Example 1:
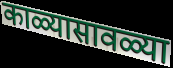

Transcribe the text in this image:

काळ्यासावळ्या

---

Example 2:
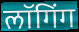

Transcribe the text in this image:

लॉगिंग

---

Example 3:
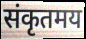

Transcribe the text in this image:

संकृतमय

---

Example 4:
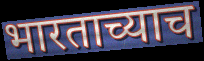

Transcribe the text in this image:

भारताच्याच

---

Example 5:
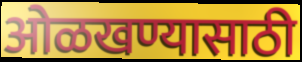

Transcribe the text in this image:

ओळखण्यासाठी